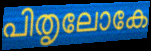
പിതൃലോകേ